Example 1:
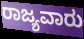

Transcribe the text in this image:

ರಾಜ್ಯವಾರು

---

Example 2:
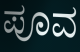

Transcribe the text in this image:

ಪೂವ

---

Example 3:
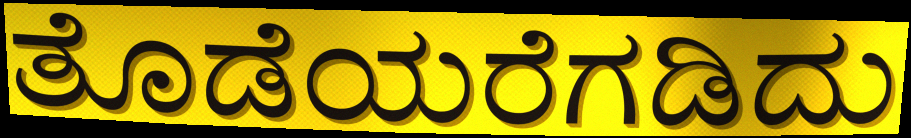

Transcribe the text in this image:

ತೊಡೆಯರೆಗಡಿದು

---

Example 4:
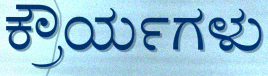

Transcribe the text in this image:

ಕ್ರೌರ್ಯಗಳು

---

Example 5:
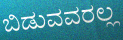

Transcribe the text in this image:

ಬಿಡುವವರಲ್ಲ